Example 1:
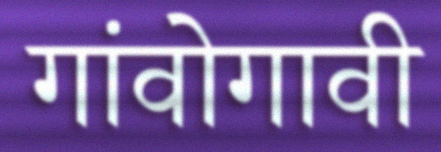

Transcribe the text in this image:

गांवोगावी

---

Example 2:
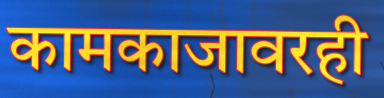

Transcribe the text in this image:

कामकाजावरही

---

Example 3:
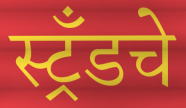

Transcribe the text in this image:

स्ट्रँडचे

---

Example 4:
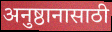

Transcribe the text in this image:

अनुष्ठानासाठी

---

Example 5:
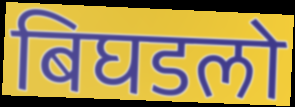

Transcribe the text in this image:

बिघडलो